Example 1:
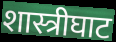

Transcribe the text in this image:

शास्त्रीघाट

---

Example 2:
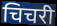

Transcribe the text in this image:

चिचरी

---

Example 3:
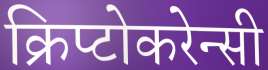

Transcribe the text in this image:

क्रिप्टोकरेन्सी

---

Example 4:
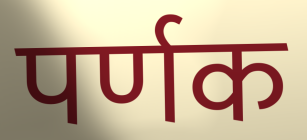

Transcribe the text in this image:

पर्णक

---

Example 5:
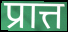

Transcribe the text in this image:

प्रात्त